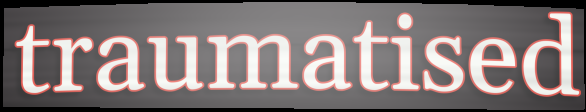
traumatised